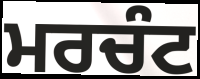
ਮਰਚੰਟ